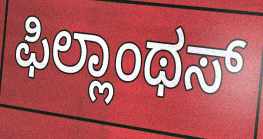
ಫಿಲ್ಲಾಂಥಸ್